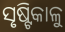
ସୃଷ୍ଟିକାଳୁ